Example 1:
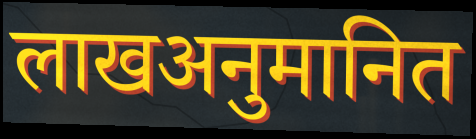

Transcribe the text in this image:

लाखअनुमानित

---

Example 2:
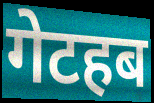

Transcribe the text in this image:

गेटहब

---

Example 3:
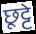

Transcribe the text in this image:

छूट्टे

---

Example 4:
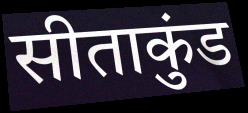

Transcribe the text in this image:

सीताकुंड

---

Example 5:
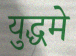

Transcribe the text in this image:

युद्धमे